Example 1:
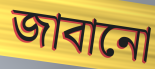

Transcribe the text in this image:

জাবানো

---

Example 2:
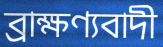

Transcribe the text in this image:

ব্রাক্ষণ্যবাদী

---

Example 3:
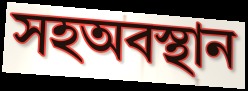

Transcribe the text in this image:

সহঅবস্থান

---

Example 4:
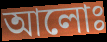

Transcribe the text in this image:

আলোঃ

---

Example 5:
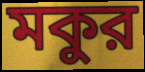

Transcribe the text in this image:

মকুর